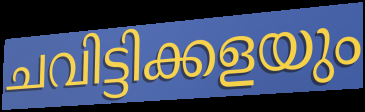
ചവിട്ടിക്കളയും